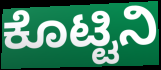
ಕೊಟ್ಟಿನಿ